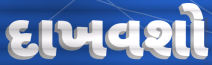
દાખવશો